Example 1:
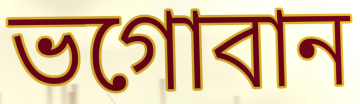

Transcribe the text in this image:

ভগোবান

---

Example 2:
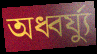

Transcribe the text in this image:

অধ্বর্য্যু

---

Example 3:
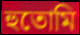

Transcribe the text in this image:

হুতোমি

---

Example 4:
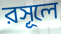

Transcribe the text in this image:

রসূলে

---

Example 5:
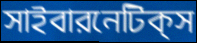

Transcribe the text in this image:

সাইবারনেটিক্‌স